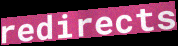
redirects